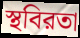
স্থবিরতা